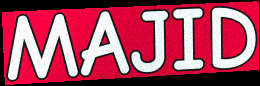
MAJID